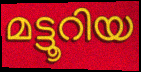
മട്ടൂറിയ